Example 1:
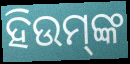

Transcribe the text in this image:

ହିଉମ୍‌ଙ୍କ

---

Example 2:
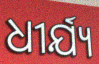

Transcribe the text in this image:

ଧୀର୍ଯ୍ୟ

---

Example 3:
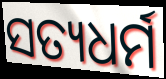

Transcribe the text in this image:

ସତ୍ୟଧର୍ମ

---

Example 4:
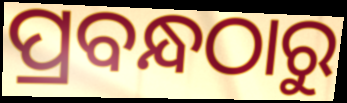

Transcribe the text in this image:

ପ୍ରବନ୍ଧଠାରୁ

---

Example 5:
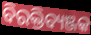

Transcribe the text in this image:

ବିରକ୍ତିବ୍ୟଞ୍ଜକ